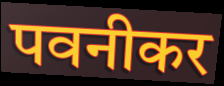
पवनीकर